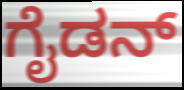
ಗೈಡನ್